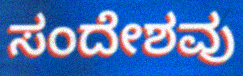
ಸಂದೇಶವು